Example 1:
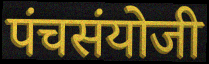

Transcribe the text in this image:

पंचसंयोजी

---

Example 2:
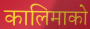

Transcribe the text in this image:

कालिमाको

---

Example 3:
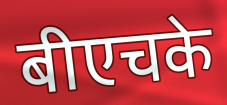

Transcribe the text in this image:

बीएचके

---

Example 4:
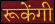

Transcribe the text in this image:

रूकेंगी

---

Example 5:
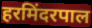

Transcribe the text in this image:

हरमिंदरपाल